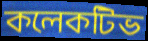
কলেকটিভ